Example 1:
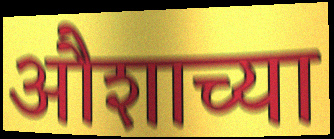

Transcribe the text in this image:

औशाच्या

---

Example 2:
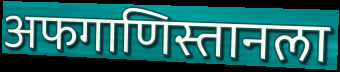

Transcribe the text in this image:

अफगाणिस्तानला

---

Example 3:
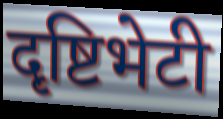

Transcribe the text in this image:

दृष्टिभेटी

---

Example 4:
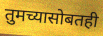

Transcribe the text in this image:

तुमच्यासोबतही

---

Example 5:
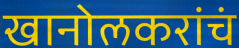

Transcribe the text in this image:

खानोलकरांचं